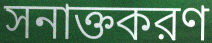
সনাক্তকরণ